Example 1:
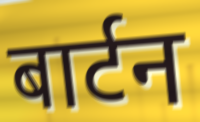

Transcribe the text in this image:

बार्टन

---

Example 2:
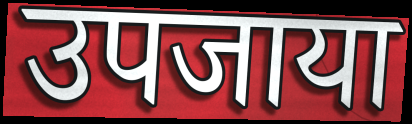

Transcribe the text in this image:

उपजाया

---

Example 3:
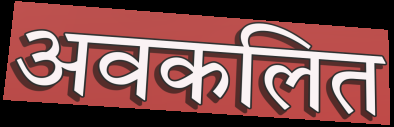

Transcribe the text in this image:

अवकलित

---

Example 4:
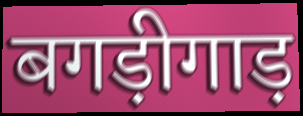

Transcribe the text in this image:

बगड़ीगाड़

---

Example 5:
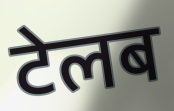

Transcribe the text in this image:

टेलब